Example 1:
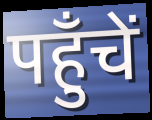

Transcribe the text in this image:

पहुँचें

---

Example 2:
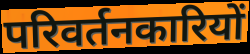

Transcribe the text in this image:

परिवर्तनकारियों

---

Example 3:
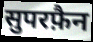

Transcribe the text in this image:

सुपरफ़ैन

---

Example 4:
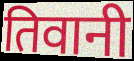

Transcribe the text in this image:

तिवानी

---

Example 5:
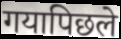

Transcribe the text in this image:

गयापिछले